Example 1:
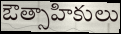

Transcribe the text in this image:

ఔత్సాహికులు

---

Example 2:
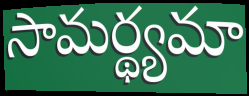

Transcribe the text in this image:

సామర్థ్యమా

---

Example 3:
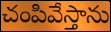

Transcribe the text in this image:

చంపివేస్తాను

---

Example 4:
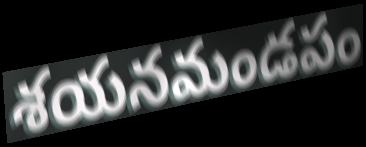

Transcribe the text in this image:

శయనమండపం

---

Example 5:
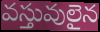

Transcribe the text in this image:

వస్తువులైన